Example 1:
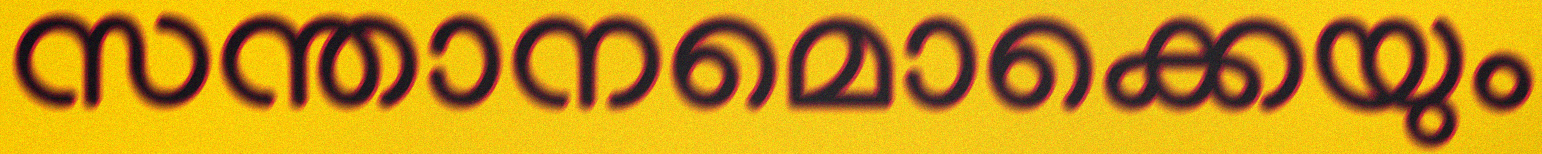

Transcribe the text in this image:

സന്താനമൊക്കെയും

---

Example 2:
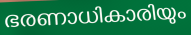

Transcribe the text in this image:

ഭരണാധികാരിയും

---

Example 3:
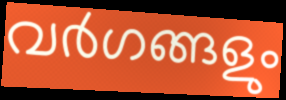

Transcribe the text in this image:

വർഗങ്ങളും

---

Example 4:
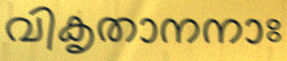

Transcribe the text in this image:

വികൃതാനനാഃ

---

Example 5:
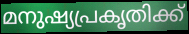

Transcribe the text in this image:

മനുഷ്യപ്രകൃതിക്ക്